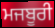
ਮਜਬੂਰੀ